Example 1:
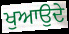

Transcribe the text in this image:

ਖੁਆਉਦੇ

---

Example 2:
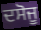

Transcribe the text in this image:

ਦਸੋਜੂ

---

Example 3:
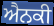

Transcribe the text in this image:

ਐਨਕੀ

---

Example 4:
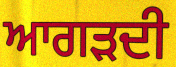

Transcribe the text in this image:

ਆਗੜਦੀ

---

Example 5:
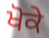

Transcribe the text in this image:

ਖੋਕੇ